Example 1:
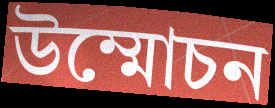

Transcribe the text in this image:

উম্মোচন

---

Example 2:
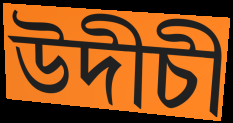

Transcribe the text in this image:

উদীচী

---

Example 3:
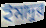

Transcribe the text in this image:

ইমাদুর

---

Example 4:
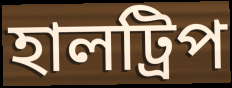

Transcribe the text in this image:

হালট্রিপ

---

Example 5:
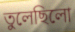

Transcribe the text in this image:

তুলেছিলো